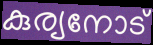
കുര്യനോട്